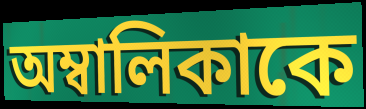
অম্বালিকাকে